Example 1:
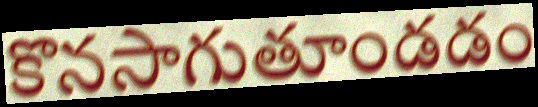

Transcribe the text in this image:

కొనసాగుతూండడం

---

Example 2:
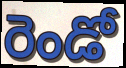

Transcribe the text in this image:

రెండో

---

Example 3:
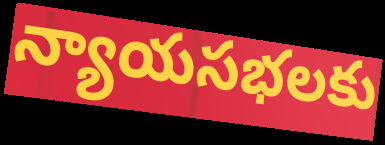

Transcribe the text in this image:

న్యాయసభలకు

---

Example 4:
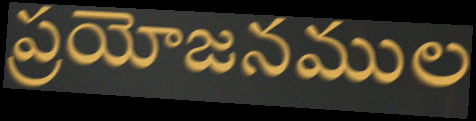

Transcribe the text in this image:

ప్రయోజనముల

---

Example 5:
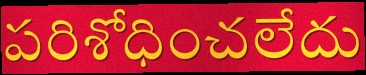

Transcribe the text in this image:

పరిశోధించలేదు